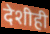
देशीही